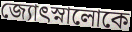
জ্যোৎস্নালোকে